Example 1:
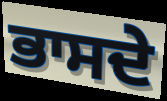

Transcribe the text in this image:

ਭਾਸਦੇ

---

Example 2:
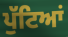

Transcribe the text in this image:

ਪੁੱਟਿਆਂ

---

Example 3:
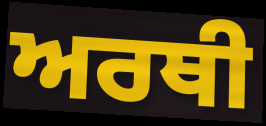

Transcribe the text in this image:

ਅਰਥੀ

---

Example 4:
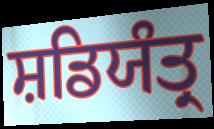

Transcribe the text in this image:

ਸ਼ਡਿਯੰਤ੍ਰ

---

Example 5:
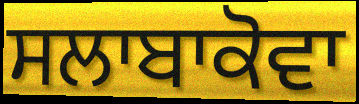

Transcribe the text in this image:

ਸਲਾਬਾਕੋਵਾ